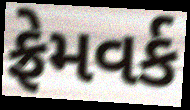
ફ્રેમવર્ક